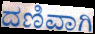
ದಣಿವಾಗಿ